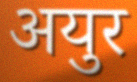
अयुर